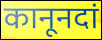
कानूनदां